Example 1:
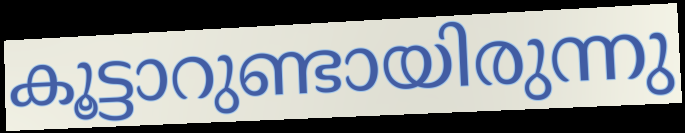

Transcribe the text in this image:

കൂട്ടാറുണ്ടായിരുന്നു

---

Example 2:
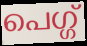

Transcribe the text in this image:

പെഗ്ഗ്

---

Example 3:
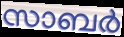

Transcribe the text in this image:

സാബർ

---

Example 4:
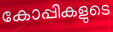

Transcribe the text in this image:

കോപ്പികളുടെ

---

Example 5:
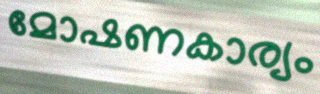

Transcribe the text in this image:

മോഷണകാര്യം